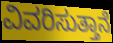
ವಿವರಿಸುತ್ತಾನೆ